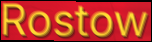
Rostow